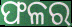
ଫଳର